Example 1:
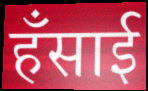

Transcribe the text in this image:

हँसाई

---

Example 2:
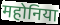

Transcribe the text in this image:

महोनिया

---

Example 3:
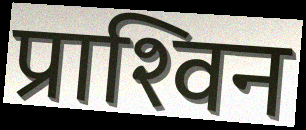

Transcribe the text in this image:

प्राश्विन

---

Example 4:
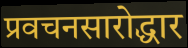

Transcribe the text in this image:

प्रवचनसारोद्धार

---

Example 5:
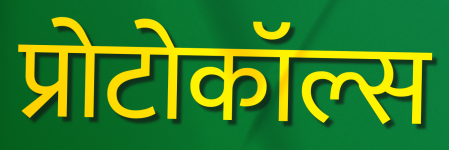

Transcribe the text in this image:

प्रोटोकॉल्स